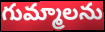
గుమ్మాలను